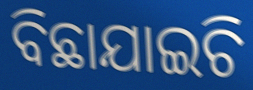
ବିଛାଯାଇଚି